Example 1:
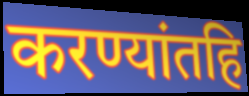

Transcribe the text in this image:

करण्यांतहि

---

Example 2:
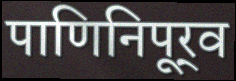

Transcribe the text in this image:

पाणिनिपूर्व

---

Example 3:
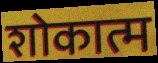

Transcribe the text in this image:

शोकात्म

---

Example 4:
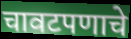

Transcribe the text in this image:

चावटपणाचे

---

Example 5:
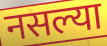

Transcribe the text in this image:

नसल्या